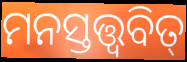
ମନସ୍ତତ୍ତ୍ଵବିତ୍